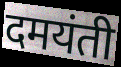
दमयंती